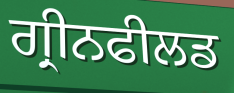
ਗ੍ਰੀਨਫੀਲਡ